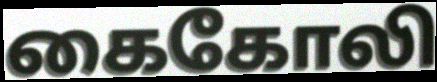
கைகோலி